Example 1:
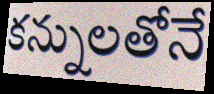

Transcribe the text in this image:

కన్నులతోనే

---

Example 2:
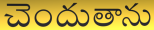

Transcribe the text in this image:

చెందుతాను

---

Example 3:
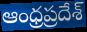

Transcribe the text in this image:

ఆంధ్రప్రదేశ్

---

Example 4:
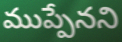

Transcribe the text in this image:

ముప్పేనని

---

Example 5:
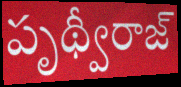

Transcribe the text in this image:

పృథ్వీరాజ్